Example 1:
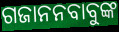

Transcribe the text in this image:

ଗଜାନନବାବୁଙ୍କ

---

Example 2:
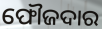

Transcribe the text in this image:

ଫୌଜଦାର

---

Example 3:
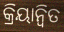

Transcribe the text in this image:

କ୍ରିୟାନ୍ୱିତ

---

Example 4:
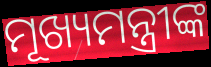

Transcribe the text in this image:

ମୂଖ୍ୟମନ୍ତ୍ରୀଙ୍କ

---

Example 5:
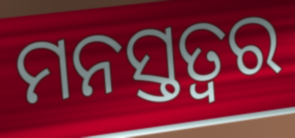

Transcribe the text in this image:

ମନସ୍ତତ୍ଵର